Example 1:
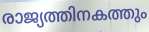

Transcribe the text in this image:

രാജ്യത്തിനകത്തും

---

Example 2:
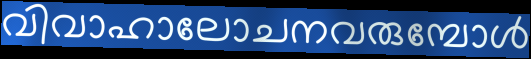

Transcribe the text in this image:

വിവാഹാലോചനവരുമ്പോൾ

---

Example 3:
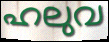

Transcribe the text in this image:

ഹലുവ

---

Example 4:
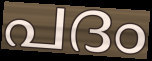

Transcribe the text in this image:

പദം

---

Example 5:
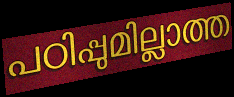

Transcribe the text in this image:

പഠിപ്പുമില്ലാത്ത